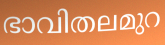
ഭാവിതലമുറ